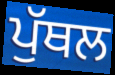
ਪੁੱਥਲ